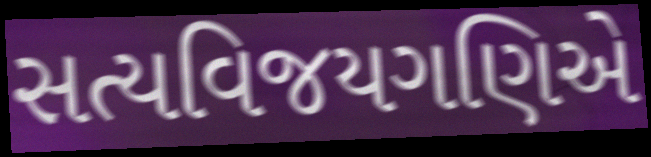
સત્યવિજયગણિએ